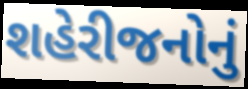
શહેરીજનોનું